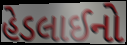
હેડલાઈનો